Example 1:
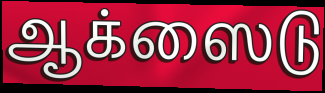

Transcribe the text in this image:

ஆக்ஸைடு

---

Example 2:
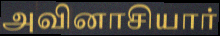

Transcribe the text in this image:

அவினாசியார்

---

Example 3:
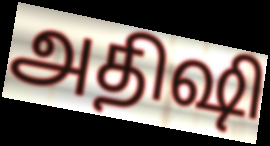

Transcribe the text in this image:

அதிஷி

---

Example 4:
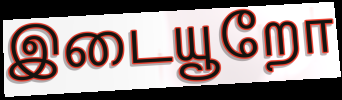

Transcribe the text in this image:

இடையூறோ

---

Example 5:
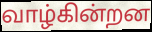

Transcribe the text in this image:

வாழ்கின்றன